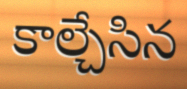
కాల్చేసిన